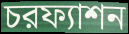
চরফ্যাশন